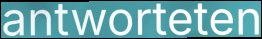
antworteten